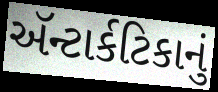
ઍન્ટાર્કટિકાનું